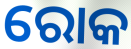
ରୋକ